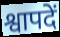
श्वापदें